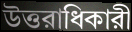
উত্তরাধিকারী